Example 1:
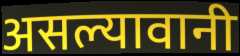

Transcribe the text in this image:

असल्यावानी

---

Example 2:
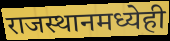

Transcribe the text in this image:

राजस्थानमध्येही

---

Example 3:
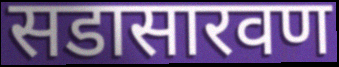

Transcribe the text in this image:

सडासारवण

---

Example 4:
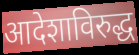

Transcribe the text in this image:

आदेशाविरुद्ध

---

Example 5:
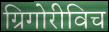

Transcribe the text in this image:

ग्रिगोरीविच